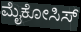
ಮೈಕೋಸಿಸ್